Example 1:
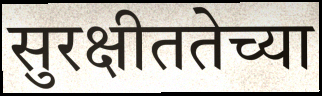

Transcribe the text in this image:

सुरक्षीततेच्या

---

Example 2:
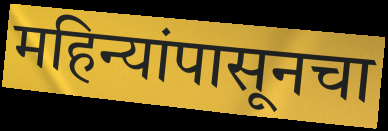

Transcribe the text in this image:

महिन्यांपासूनचा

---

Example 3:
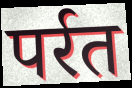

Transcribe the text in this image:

पर्रत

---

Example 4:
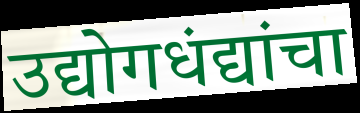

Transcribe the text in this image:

उद्योगधंद्यांचा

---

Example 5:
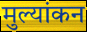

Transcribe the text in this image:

मुल्यांकन